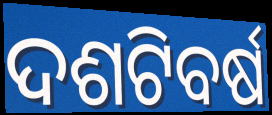
ଦଶଟିବର୍ଷ